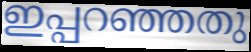
ഇപ്പറഞ്ഞതു